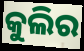
କୁଲିର